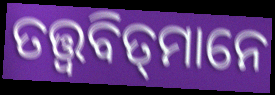
ତତ୍ତ୍ୱବିତ୍‌ମାନେ